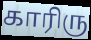
காரிரு